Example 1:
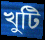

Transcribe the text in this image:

খুটি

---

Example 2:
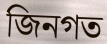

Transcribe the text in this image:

জিনগত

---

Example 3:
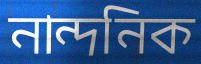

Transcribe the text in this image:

নান্দনিক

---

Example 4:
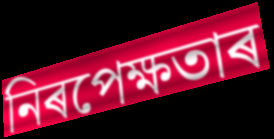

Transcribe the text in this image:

নিৰপেক্ষতাৰ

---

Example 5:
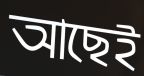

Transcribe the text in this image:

আছেই